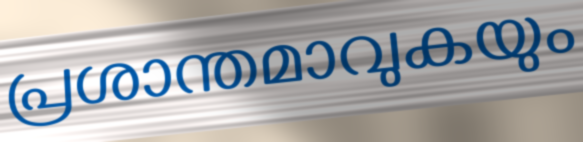
പ്രശാന്തമാവുകയും